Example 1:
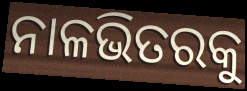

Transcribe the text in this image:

ନାଳଭିତରକୁ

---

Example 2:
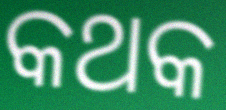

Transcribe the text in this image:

କଥକ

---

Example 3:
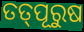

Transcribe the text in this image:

ତତ୍‌ପୂରୁଷ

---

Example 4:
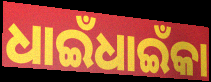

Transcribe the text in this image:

ଧାଇଁଧାଇଁକା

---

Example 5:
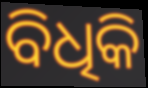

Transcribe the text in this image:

ବିଧିକି